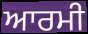
ਆਰਮੀ